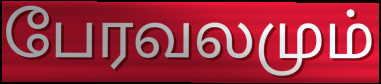
பேரவலமும்